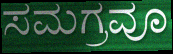
ಸಮಗ್ರವೂ